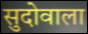
सुदोवाला